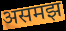
असमझ